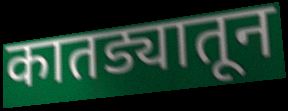
कातड्यातून